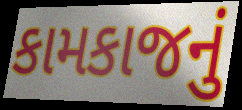
કામકાજનું